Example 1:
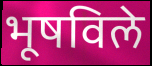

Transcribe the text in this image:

भूषविले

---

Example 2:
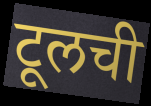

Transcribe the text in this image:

टूलची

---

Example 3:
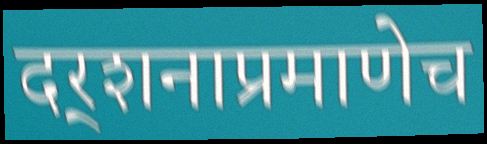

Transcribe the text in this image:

दर्शनाप्रमाणेच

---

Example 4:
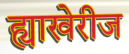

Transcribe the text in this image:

ह्याखेरीज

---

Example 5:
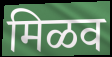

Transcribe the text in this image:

मिळव